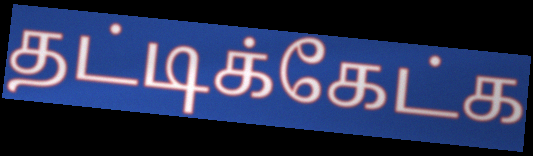
தட்டிக்கேட்க